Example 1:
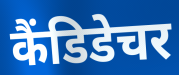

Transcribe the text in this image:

कैंडिडेचर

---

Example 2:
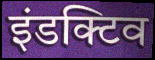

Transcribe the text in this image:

इंडक्टिव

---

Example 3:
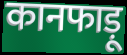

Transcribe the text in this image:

कानफाड़ू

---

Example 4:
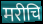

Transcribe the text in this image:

मरीचि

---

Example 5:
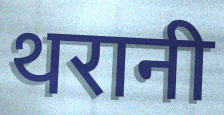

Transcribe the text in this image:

थरानी